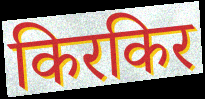
किरकिर